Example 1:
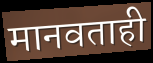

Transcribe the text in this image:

मानवताही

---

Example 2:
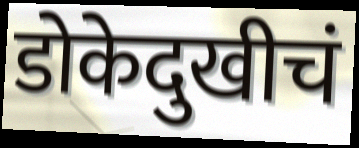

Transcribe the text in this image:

डोकेदुखीचं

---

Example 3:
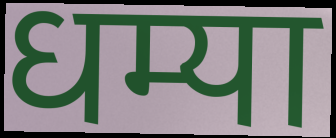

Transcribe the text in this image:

धम्या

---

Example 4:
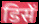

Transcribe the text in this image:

डिसें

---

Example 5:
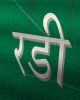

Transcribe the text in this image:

रडी